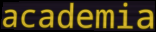
academia